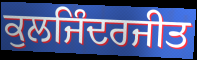
ਕੁਲਜਿੰਦਰਜੀਤ